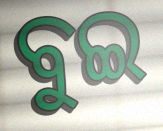
ବୁଇ